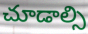
చూడాల్సి